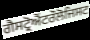
ਗੈਸਟ੍ਰੋਐਂਟਰੌਲੋਜਿਸਟ